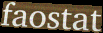
faostat